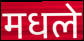
मधले